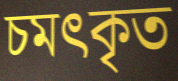
চমৎকৃত